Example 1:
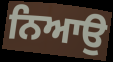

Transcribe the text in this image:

ਨਿਆਉ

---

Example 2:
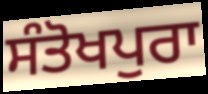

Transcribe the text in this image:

ਸੰਤੋਖਪੁਰਾ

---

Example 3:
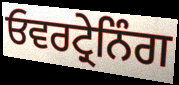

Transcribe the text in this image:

ਓਵਰਟ੍ਰੇਨਿੰਗ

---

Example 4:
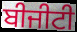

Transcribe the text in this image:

ਬੀਜੀਟੀ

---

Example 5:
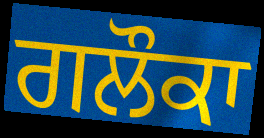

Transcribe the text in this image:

ਗਲੌਕਾ